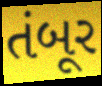
તંબૂર